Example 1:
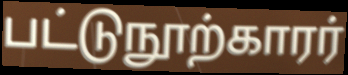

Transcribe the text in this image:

பட்டுநூற்காரர்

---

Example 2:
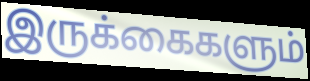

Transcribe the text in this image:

இருக்கைகளும்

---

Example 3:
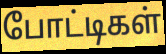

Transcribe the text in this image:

போட்டிகள்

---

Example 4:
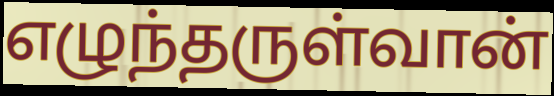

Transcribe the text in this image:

எழுந்தருள்வான்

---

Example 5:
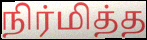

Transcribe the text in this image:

நிர்மித்த